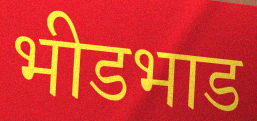
भीडभाड